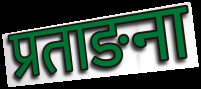
प्रताङना